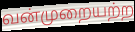
வன்முறையற்ற